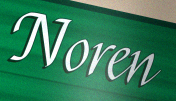
Noren